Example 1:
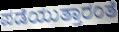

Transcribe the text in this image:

ಪಡೆಯುತ್ತಾರಂತೆ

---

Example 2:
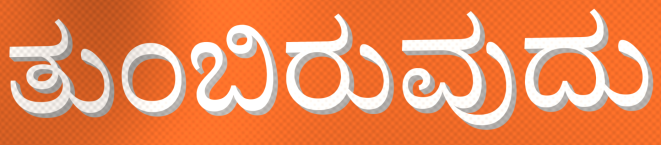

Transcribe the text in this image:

ತುಂಬಿರುವುದು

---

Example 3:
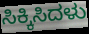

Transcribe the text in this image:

ಸಿಕ್ಕಿಸಿದಳು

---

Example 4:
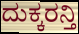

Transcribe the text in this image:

ದುಕ್ಕರನ್ತಿ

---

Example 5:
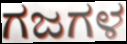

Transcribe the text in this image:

ಗಜಗಳ